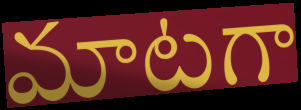
మాటగా